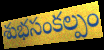
శుభసంకల్పం